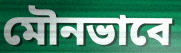
মৌনভাবে